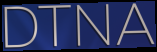
DTNA